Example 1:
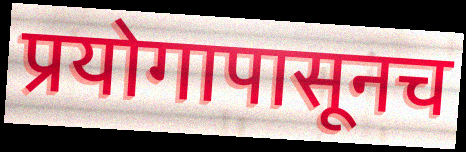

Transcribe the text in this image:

प्रयोगापासूनच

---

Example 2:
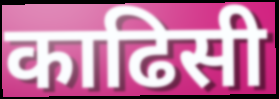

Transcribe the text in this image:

काढिसी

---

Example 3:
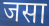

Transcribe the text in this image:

जसा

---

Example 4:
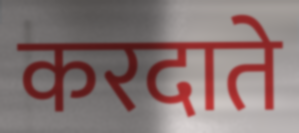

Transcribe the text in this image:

करदाते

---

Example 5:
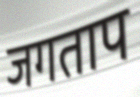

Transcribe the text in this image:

जगताप